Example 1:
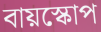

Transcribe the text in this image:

বায়স্কোপ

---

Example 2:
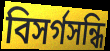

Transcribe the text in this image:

বিসর্গসন্ধি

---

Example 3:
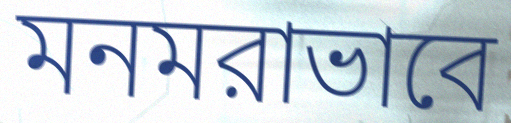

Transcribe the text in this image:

মনমরাভাবে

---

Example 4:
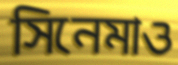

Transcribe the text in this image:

সিনেমাও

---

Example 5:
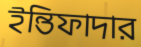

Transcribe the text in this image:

ইন্তিফাদার